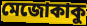
মেজোকাকু